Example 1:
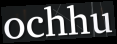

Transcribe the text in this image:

ochhu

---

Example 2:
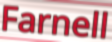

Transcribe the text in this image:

Farnell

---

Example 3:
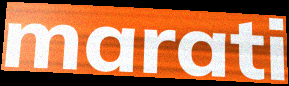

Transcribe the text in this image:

marati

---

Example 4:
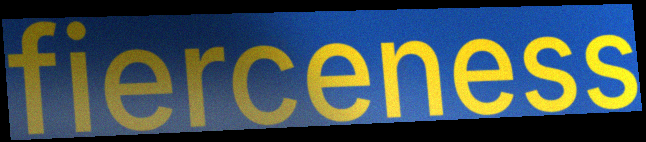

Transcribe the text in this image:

fierceness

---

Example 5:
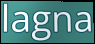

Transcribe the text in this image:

lagna